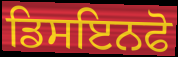
ਡਿਸਇਨਫੋ